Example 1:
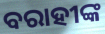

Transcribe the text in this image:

ବରାହୀଙ୍କ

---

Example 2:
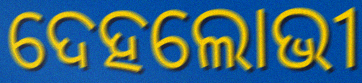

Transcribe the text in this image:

ଦେହଲୋଭୀ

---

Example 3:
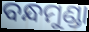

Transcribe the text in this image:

ବନ୍ଧମୁଣ୍ଡା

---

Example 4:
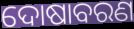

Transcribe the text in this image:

ଦୋଷାବରଣ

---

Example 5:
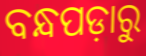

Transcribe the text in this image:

ବନ୍ଧପଡ଼ାରୁ